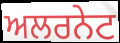
ਅਲਰਨੇਟ